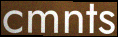
cmnts